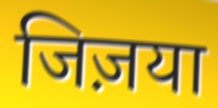
जिज़या